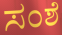
ಸಂಶೆ